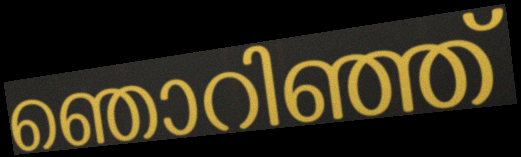
ഞൊറിഞ്ഞ്